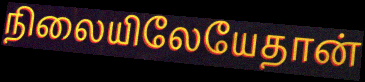
நிலையிலேயேதான்